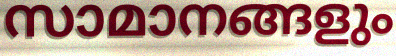
സാമാനങ്ങളും